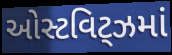
ઓસ્ટવિટ્ઝમાં